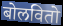
बोलवितो